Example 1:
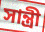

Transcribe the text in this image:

সান্ত্রী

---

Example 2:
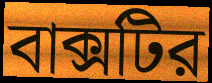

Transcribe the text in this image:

বাক্সটির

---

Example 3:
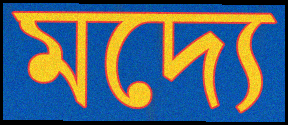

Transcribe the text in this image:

মদ্যে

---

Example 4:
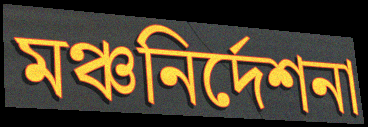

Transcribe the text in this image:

মঞ্চনির্দেশনা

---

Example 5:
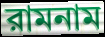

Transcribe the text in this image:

রামনাম